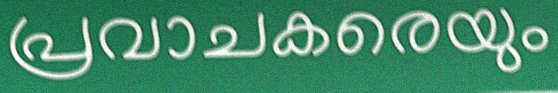
പ്രവാചകരെയും